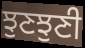
ਝੁਣਝੁਣੀ